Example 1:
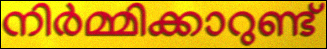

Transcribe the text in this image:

നിർമ്മിക്കാറുണ്ട്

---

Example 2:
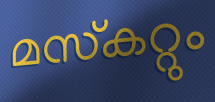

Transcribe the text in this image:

മസ്‌കറ്റും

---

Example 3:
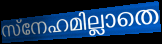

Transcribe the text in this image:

സ്‌നേഹമില്ലാതെ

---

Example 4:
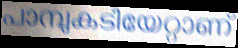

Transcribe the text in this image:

പാമ്പുകടിയേറ്റാണ്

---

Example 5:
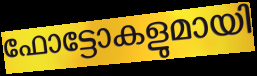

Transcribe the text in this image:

ഫോട്ടോകളുമായി